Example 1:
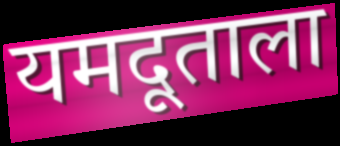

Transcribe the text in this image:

यमदूताला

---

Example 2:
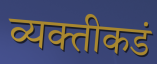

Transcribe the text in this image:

व्यक्तीकडं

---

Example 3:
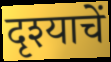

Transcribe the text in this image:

दृश्याचें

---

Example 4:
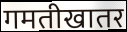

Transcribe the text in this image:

गमतीखातर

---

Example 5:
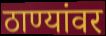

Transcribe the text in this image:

ठाण्यांवर